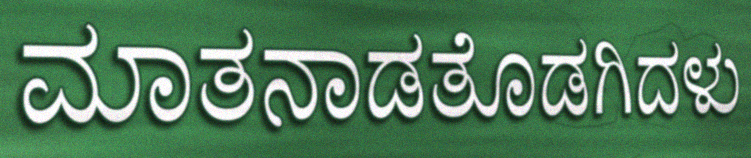
ಮಾತನಾಡತೊಡಗಿದಳು